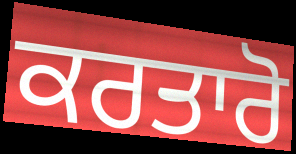
ਕਰਤਾਰੋ